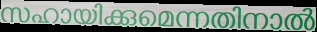
സഹായിക്കുമെന്നതിനാൽ